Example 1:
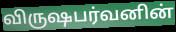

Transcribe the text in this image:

விருஷபர்வனின்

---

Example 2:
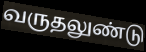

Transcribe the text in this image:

வருதலுண்டு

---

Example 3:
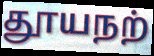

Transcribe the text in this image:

தூயநற்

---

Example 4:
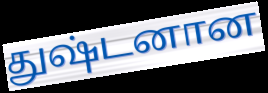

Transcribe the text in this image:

துஷ்டனான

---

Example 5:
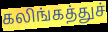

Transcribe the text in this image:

கலிங்கத்துச்